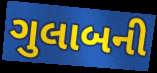
ગુલાબની